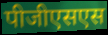
पीजीएसएस